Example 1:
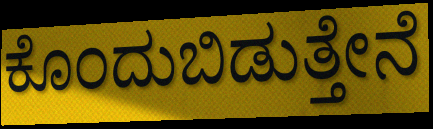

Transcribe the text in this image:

ಕೊಂದುಬಿಡುತ್ತೇನೆ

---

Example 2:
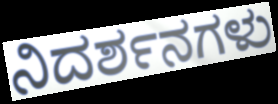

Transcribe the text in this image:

ನಿದರ್ಶನಗಳು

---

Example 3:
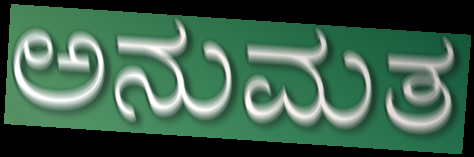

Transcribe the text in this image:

ಅನುಮತ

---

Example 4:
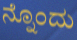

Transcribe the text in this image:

ನ್ನೊಂದು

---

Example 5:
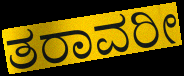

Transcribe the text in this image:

ತರಾವರೀ